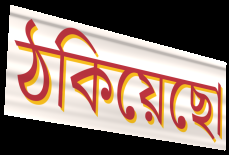
ঠকিয়েছো